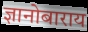
ज्ञानोबाराय